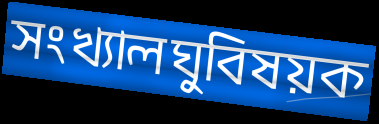
সংখ্যালঘুবিষয়ক